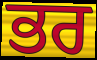
ਭਰ